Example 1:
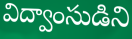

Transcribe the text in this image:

విద్వాంసుడిని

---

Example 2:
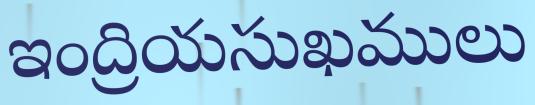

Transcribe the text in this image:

ఇంద్రియసుఖములు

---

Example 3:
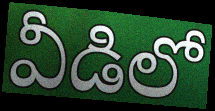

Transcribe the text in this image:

వీడిలో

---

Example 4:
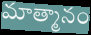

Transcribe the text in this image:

మాత్మానం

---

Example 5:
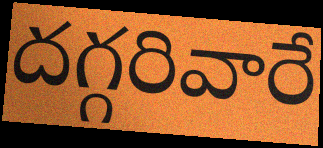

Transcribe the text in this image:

దగ్గరివారే